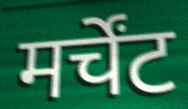
मर्चेंट